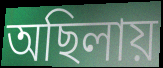
অছিলায়